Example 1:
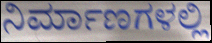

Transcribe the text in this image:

ನಿರ್ಮಾಣಗಳಲ್ಲಿ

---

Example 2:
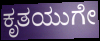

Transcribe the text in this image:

ಕೃತಯುಗೇ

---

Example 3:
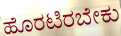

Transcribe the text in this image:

ಹೊರಟಿರಬೇಕು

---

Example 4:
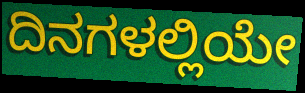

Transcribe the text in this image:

ದಿನಗಳಲ್ಲಿಯೇ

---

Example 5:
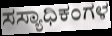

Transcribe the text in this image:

ಸಸ್ಯಾಧಿಕಂಗಳ